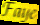
Faye